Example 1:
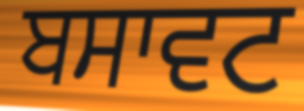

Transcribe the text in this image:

ਬਸਾਵਟ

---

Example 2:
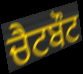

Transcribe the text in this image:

ਚੈਟਬੌਟ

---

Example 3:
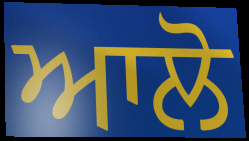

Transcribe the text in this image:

ਆਲੋ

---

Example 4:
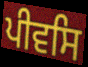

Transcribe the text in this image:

ਪੀਵਸਿ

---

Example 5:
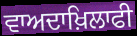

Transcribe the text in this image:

ਵਾਅਦਾਖ਼ਿਲਾਫੀ